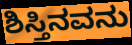
ಶಿಸ್ತಿನವನು